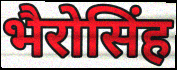
भैरोसिंह